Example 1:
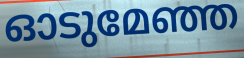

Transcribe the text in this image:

ഓടുമേഞ്ഞ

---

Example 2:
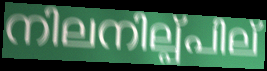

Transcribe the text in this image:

നിലനില്പ്പില്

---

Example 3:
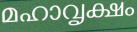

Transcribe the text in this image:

മഹാവൃക്ഷം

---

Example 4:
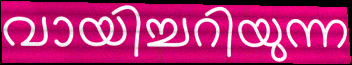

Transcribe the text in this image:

വായിച്ചറിയുന്ന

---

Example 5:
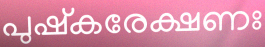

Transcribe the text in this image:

പുഷ്കരേക്ഷണഃ